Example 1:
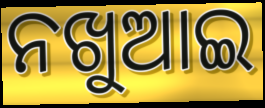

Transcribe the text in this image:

ନଖୁଆଇ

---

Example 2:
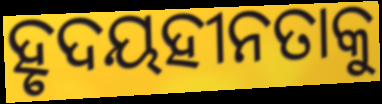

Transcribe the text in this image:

ହୃଦୟହୀନତାକୁ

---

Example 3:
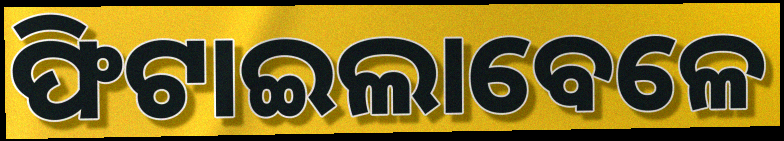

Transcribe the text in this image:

ଫିଟାଇଲାବେଳେ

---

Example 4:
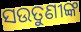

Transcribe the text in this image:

ସଉତୁଣୀଙ୍କ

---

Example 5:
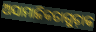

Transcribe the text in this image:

ଅସାମାଜିକତାଗୁଡ଼ାକ